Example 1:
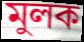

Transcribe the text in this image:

মুলক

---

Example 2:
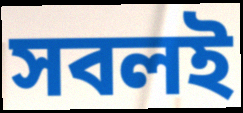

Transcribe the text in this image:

সবলই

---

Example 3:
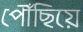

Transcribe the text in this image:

পৌঁছিয়ে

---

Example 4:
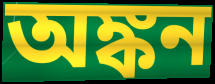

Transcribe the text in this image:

অঙ্কন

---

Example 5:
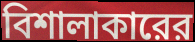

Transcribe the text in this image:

বিশালাকারের